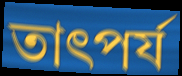
তাৎপৰ্য